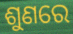
ଶୁଣରେ